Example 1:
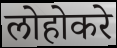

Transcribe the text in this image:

लोहोकरे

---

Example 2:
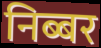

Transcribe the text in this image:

निब्बर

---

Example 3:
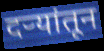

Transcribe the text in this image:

दऱ्यांतून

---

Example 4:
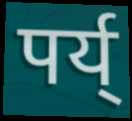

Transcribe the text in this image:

पर्य्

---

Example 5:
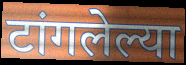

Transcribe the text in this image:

टांगलेल्या